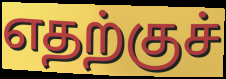
எதற்குச்